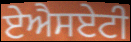
ਏਐਸਏਟੀ